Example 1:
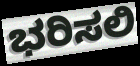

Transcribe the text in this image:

ಭರಿಸಲಿ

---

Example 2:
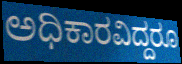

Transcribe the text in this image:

ಅಧಿಕಾರವಿದ್ದರೂ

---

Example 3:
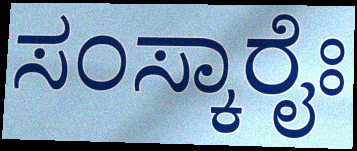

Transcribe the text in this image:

ಸಂಸ್ಕಾರೈಃ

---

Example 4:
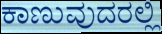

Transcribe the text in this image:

ಕಾಣುವುದರಲ್ಲಿ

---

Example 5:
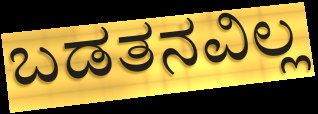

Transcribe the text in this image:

ಬಡತನವಿಲ್ಲ